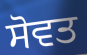
ਸੋਵਤ